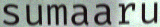
sumaaru